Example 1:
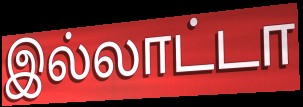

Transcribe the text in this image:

இல்லாட்டா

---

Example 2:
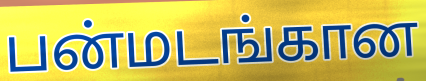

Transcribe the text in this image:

பன்மடங்கான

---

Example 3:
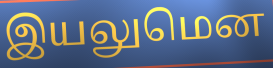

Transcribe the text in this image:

இயலுமென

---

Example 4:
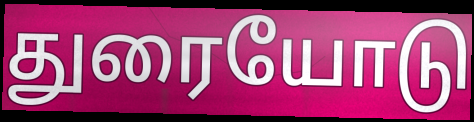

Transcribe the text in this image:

துரையோடு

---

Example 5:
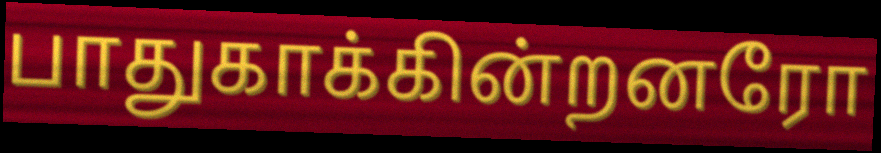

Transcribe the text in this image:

பாதுகாக்கின்றனரோ